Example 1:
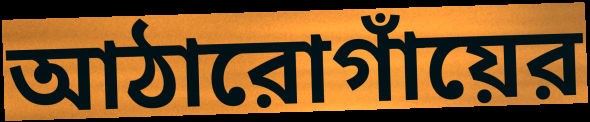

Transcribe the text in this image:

আঠারোগাঁয়ের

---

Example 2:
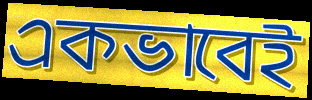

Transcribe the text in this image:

একভাবেই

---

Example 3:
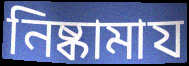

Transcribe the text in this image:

নিষ্কামায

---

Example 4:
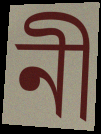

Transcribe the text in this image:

নী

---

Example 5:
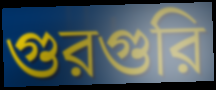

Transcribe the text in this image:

গুরগুরি